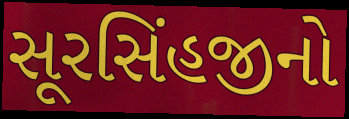
સૂરસિંહજીનો